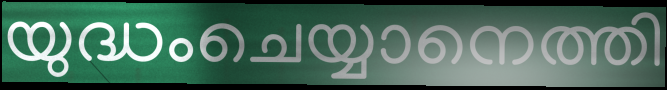
യുദ്ധംചെയ്യാനെത്തി